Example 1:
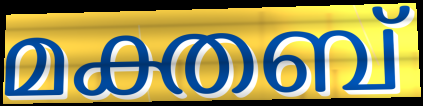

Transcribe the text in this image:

മക്തബ്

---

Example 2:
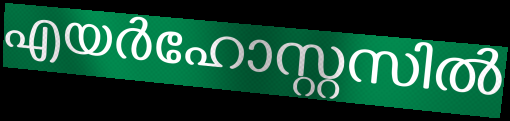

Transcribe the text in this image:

എയർഹോസ്റ്റസിൽ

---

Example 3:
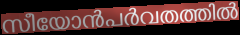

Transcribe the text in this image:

സീയോൻപർവതത്തിൽ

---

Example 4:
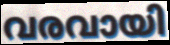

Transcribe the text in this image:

വരവായി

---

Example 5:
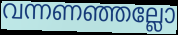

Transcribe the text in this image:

വന്നണഞ്ഞല്ലോ